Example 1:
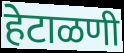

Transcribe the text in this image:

हेटाळणी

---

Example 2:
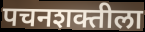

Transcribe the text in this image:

पचनशक्तीला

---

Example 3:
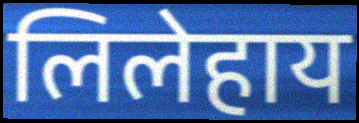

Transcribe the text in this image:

लिलेहाय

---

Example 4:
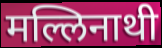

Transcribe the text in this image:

मल्लिनाथी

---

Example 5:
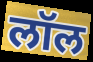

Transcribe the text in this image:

लॉल